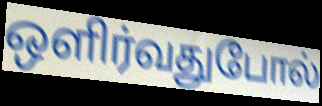
ஒளிர்வதுபோல்